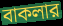
বাকলার